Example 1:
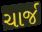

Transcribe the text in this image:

ચાર્જ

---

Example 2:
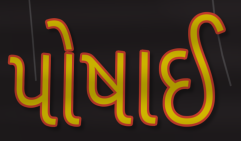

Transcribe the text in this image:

પોષાઈ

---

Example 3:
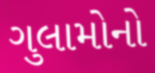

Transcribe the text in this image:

ગુલામોનો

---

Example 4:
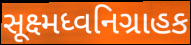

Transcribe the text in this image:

સૂક્ષ્મધ્વનિગ્રાહક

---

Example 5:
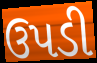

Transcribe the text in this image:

ઉપડી